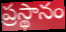
ప్రస్థానం